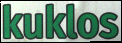
kuklos